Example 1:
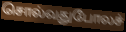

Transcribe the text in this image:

சொல்வதுபோலச்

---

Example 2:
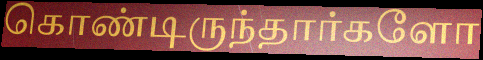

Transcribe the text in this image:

கொண்டிருந்தார்களோ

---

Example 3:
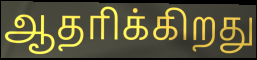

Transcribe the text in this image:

ஆதரிக்கிறது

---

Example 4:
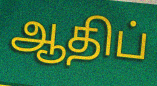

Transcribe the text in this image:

ஆதிப்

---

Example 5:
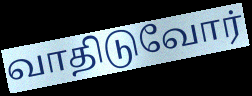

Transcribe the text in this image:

வாதிடுவோர்